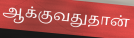
ஆக்குவதுதான்